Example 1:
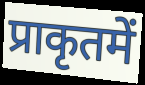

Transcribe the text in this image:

प्राकृतमें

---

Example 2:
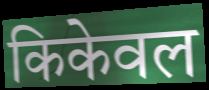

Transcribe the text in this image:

किकेवल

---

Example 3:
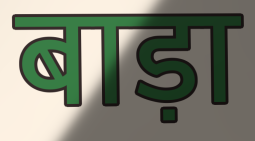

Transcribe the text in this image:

बाड़ा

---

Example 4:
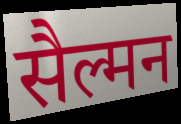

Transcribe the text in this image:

सैल्मन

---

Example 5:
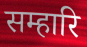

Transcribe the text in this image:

सम्हारि